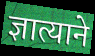
ज्ञात्याने